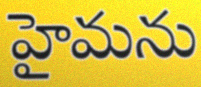
హైమను